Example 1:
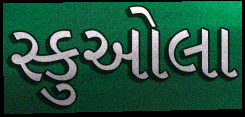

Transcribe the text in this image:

સ્કુઓલા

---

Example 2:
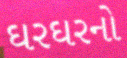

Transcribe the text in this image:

ઘરઘરનો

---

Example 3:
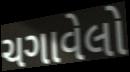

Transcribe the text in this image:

ચગાવેલો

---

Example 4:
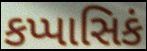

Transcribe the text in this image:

કપ્પાસિકં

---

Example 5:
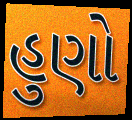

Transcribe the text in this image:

હુણો